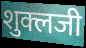
शुक्‍लजी